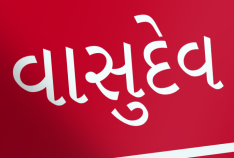
વાસુદેવ